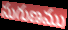
సుగుణము